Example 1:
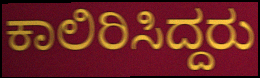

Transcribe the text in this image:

ಕಾಲಿರಿಸಿದ್ದರು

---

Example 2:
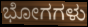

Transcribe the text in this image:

ಭೋಗಗಳು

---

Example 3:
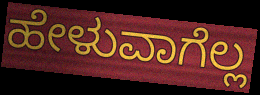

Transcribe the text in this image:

ಹೇಳುವಾಗೆಲ್ಲ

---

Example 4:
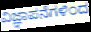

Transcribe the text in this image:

ವಿಜ್ಞಾಪನೆಗಳಿಂದ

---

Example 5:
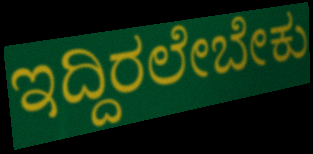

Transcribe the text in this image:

ಇದ್ದಿರಲೇಬೇಕು